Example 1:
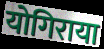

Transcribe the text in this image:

योगिराया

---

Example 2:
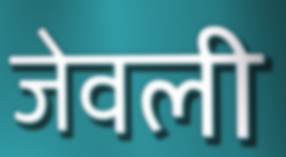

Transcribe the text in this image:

जेवली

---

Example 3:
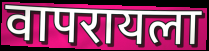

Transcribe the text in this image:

वापरायला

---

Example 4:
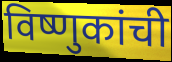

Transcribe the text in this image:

विष्णुकांची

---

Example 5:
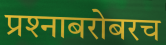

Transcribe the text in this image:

प्रश्‍नाबरोबरच